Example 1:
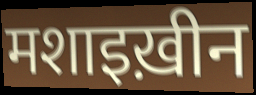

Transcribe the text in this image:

मशाइख़ीन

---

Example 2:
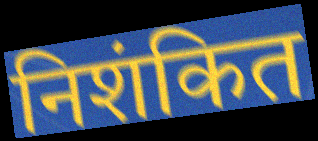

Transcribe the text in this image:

निशंकित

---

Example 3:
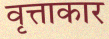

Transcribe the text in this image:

वृत्ताकार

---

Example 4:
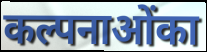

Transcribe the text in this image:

कल्पनाओंका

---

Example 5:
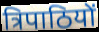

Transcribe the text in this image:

त्रिपाठियों